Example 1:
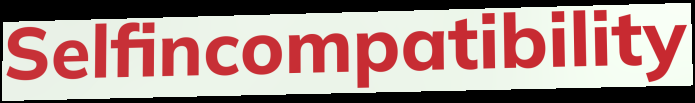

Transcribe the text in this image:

Selfincompatibility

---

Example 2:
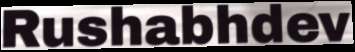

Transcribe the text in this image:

Rushabhdev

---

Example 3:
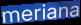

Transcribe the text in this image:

meriana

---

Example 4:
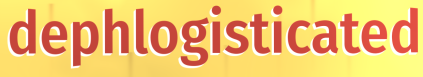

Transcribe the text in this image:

dephlogisticated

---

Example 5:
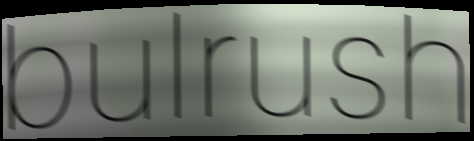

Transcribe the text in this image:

bulrush